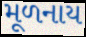
મૂળનાય